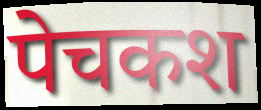
पेचकश